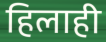
हिलाही